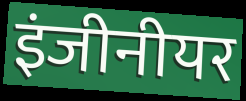
इंजीनीयर